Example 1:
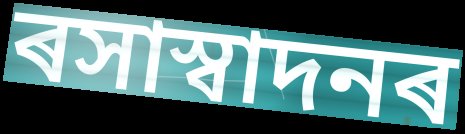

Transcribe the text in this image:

ৰসাস্বাদনৰ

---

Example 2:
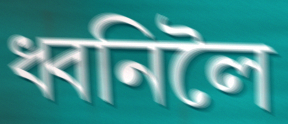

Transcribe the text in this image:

ধ্বনিলৈ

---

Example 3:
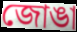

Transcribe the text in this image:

জোঙা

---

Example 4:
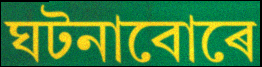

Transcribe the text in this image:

ঘটনাবোৰে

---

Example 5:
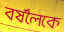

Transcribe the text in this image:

বৰ্ষলৈকে